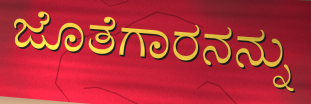
ಜೊತೆಗಾರನನ್ನು